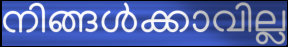
നിങ്ങൾക്കാവില്ല